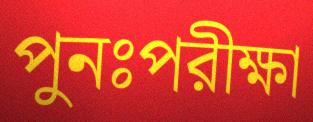
পুনঃপরীক্ষা